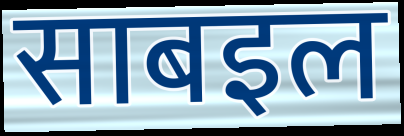
साबइल